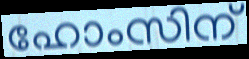
ഹോംസിന്